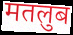
मतलुब